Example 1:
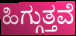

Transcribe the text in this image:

ಹಿಗ್ಗುತ್ತವೆ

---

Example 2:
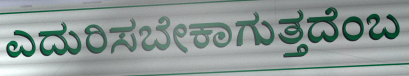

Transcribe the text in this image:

ಎದುರಿಸಬೇಕಾಗುತ್ತದೆಂಬ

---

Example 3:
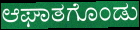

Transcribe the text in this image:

ಆಘಾತಗೊಂಡು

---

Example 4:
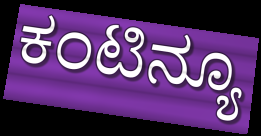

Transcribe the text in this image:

ಕಂಟಿನ್ಯೂ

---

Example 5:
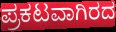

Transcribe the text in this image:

ಪ್ರಕಟವಾಗಿರದ